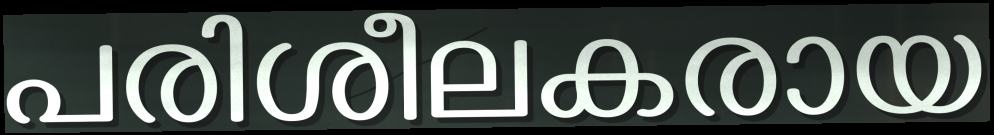
പരിശീലകരായ